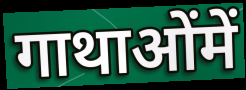
गाथाओंमें